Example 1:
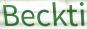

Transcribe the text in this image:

Beckti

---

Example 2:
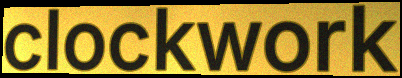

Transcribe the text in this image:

clockwork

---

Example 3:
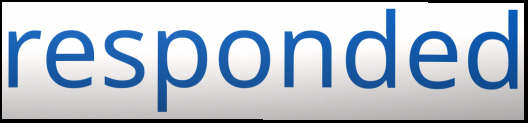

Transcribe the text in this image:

responded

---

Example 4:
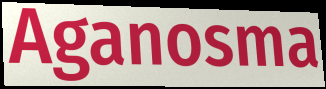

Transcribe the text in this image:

Aganosma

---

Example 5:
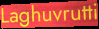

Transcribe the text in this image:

Laghuvrutti